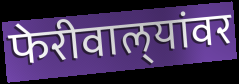
फेरीवाल्यांवर